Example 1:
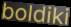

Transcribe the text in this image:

boldiki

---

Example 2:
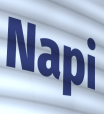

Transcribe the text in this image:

Napi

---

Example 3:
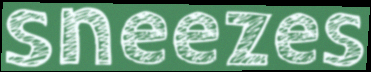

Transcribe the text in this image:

sneezes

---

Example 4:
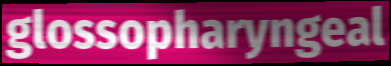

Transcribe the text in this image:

glossopharyngeal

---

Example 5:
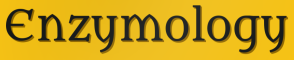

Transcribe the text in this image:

Enzymology